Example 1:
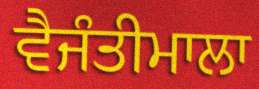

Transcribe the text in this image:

ਵੈਜੰਤੀਮਾਲਾ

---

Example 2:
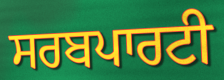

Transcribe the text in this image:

ਸਰਬਪਾਰਟੀ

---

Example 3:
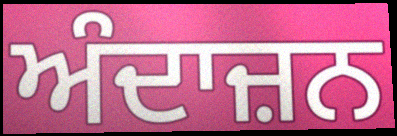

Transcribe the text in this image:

ਅੰਦਾਜ਼ਨ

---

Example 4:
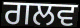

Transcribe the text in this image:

ਗਲਵ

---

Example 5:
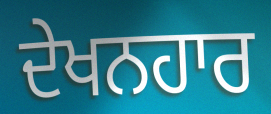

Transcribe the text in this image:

ਦੇਖਨਹਾਰ